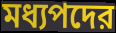
মধ্যপদের